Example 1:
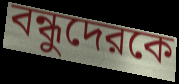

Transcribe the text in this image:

বন্ধুদেরকে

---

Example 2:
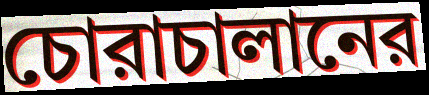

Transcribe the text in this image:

চোরাচালানের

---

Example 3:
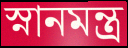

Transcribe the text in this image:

স্নানমন্ত্র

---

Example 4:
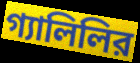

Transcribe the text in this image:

গ্যালিলির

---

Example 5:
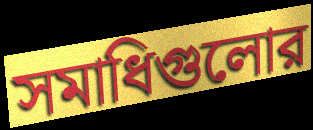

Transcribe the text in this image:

সমাধিগুলোর